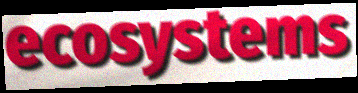
ecosystems